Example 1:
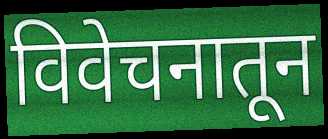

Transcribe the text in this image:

विवेचनातून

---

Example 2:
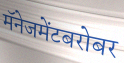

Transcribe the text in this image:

मॅनेजमेंटबरोबर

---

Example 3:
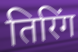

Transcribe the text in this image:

तिरिंग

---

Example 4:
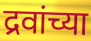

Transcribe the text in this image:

द्रवांच्या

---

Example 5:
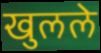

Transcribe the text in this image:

खुलले